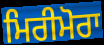
ਮਿਰੀਮੋਰਾ